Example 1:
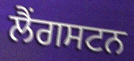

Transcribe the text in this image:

ਲੈਂਗਸਟਨ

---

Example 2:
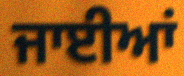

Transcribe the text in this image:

ਜਾਈਆਂ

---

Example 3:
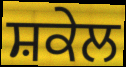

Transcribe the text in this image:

ਸ਼ਕੇਲ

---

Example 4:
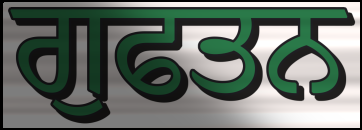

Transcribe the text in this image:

ਗੁਫਤਨ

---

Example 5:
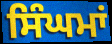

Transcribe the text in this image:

ਸਿੰਘਮਾਂ